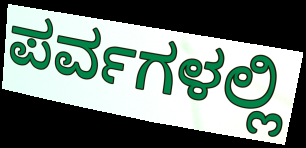
ಪರ್ವಗಳಲ್ಲಿ